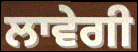
ਲਾਵੇਗੀ